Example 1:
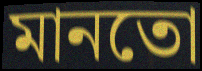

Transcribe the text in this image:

মানতো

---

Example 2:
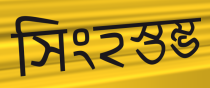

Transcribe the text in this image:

সিংহস্তম্ভ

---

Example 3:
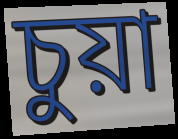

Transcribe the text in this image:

চুয়া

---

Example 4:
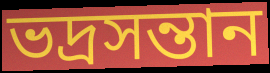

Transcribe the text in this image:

ভদ্রসন্তান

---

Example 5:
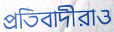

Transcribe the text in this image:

প্রতিবাদীরাও